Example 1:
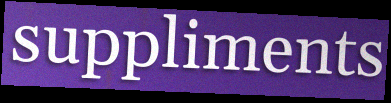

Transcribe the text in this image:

suppliments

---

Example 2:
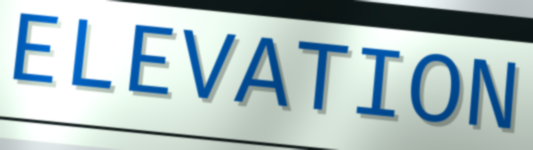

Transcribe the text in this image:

ELEVATION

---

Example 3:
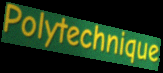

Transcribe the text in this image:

Polytechnique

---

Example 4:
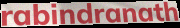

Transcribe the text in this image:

rabindranath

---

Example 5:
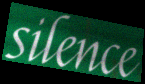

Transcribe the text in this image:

silence